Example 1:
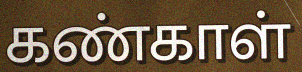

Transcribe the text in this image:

கண்காள்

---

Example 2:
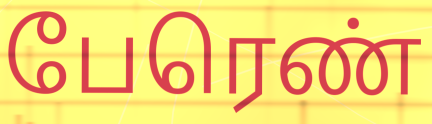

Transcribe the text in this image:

பேரெண்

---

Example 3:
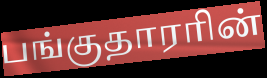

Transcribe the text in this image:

பங்குதாரரின்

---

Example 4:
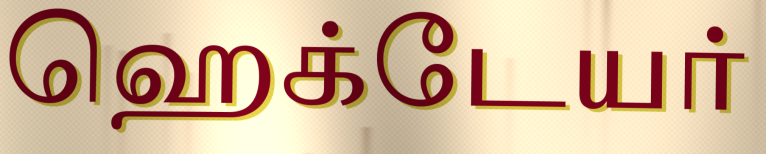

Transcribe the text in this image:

ஹெக்டேயர்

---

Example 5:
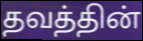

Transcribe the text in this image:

தவத்தின்